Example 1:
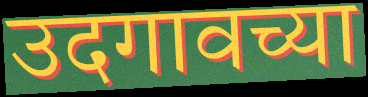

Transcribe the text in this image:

उदगावच्या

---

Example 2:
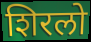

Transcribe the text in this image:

शिरलो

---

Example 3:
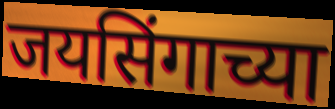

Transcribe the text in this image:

जयसिंगाच्या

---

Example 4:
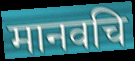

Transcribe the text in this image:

मानवचि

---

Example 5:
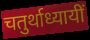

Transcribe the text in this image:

चतुर्थाध्यायीं